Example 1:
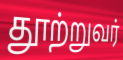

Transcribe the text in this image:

தூற்றுவர்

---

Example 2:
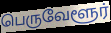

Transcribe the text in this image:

பெருவேளூர்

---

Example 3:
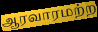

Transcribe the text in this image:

ஆரவாரமற்ற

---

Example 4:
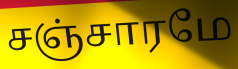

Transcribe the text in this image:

சஞ்சாரமே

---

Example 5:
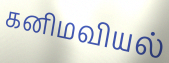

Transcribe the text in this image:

கனிமவியல்